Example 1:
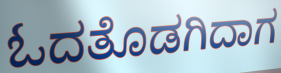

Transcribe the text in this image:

ಓದತೊಡಗಿದಾಗ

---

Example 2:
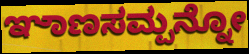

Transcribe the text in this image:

ಞಾಣಸಮ್ಪನ್ನೋ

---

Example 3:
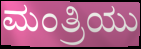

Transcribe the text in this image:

ಮಂತ್ರಿಯು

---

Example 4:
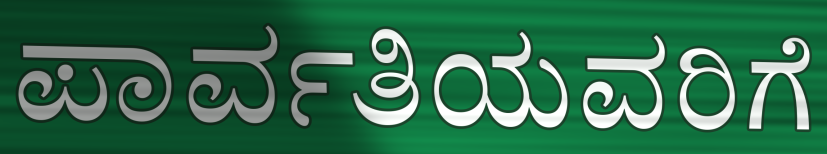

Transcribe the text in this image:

ಪಾರ್ವತಿಯವರಿಗೆ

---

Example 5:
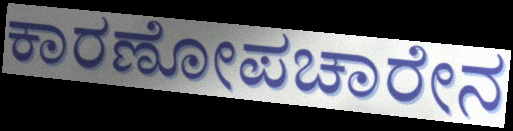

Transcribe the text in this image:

ಕಾರಣೋಪಚಾರೇನ